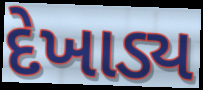
દેખાડ્ય